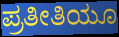
ಪ್ರತೀತಿಯೂ